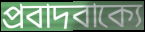
প্রবাদবাক্যে